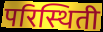
परिस्थिती